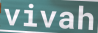
vivah